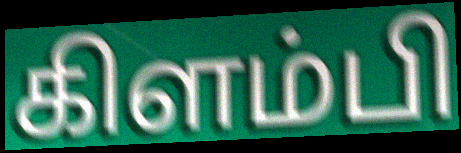
கிளம்பி